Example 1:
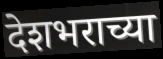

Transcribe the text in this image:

देशभराच्या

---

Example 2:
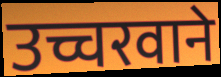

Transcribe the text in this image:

उच्चरवाने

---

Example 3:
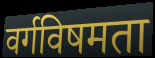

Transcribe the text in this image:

वर्गविषमता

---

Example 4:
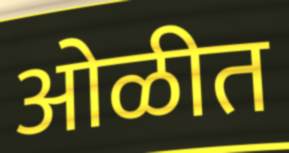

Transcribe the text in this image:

ओळीत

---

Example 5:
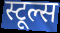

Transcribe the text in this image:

स्टूल्स